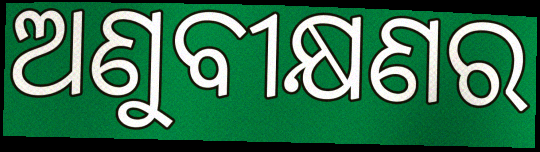
ଅଣୁବୀକ୍ଷଣର